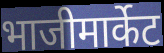
भाजीमार्केट